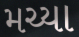
મચ્યા